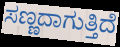
ಸಣ್ಣದಾಗುತ್ತಿದೆ